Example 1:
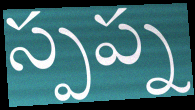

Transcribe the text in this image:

స్పప్న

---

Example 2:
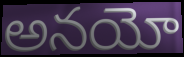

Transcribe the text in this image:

అనయో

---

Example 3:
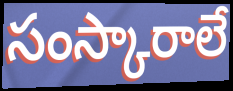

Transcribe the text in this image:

సంస్కారాలే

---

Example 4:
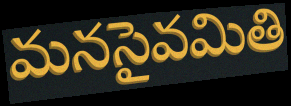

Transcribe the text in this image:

మనసైవమితి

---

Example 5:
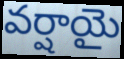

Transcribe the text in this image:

వర్షాయై